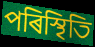
পৰিস্থিতি